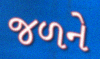
જળને